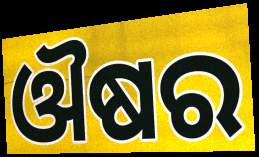
ଔଷର